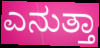
ಎನುತ್ತಾ